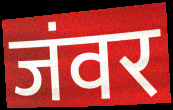
जंवर